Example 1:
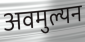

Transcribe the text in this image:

अवमुल्यन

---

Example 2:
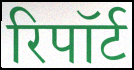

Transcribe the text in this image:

रिपॉर्ट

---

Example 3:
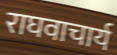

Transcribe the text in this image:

राघवाचार्य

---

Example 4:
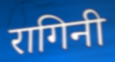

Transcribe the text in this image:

रागिनी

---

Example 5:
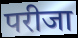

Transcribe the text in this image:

परीजा